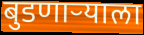
बुडणाऱ्याला